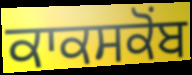
ਕਾਕਸਕੋਂਬ